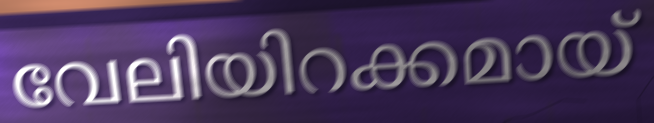
വേലിയിറക്കമായ്